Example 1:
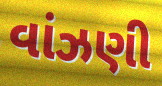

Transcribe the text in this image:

વાંઝણી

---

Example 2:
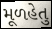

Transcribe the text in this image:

મૂળહેતુ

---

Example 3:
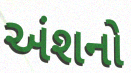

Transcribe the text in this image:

અંશનો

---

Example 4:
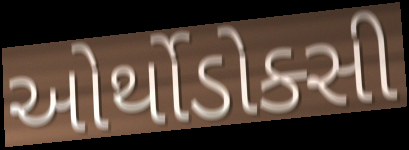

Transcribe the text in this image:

ઓર્થોડોક્સી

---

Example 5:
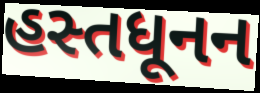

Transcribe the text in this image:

હસ્તધૂનન